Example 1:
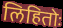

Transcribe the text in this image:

लिहितोः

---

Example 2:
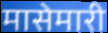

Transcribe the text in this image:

मासेमारी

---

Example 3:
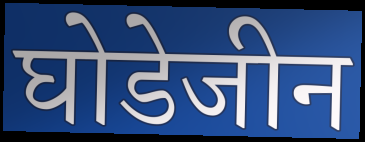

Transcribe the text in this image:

घोडेजीन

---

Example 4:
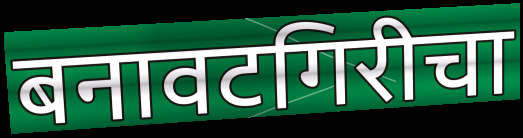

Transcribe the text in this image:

बनावटगिरीचा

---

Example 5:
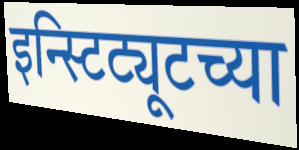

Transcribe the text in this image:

इन्स्टिट्यूटच्या